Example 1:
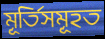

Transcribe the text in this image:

মূৰ্তিসমূহত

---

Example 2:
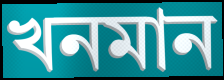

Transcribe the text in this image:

খনমান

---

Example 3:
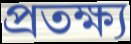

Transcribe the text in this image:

প্ৰতক্ষ্য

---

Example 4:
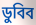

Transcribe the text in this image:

ডুবিব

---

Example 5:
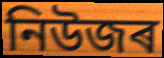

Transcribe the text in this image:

নিউজৰ